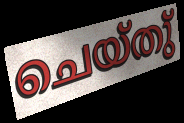
ചെയ്തു്